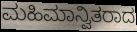
ಮಹಿಮಾನ್ವಿತರಾದ